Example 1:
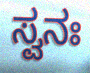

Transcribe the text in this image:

ಸ್ವನಃ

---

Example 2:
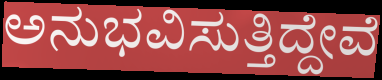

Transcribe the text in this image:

ಅನುಭವಿಸುತ್ತಿದ್ದೇವೆ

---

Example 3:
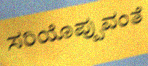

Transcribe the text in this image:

ಸರಿಯೊಪ್ಪುವಂತೆ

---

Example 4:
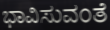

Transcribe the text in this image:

ಭಾವಿಸುವಂತೆ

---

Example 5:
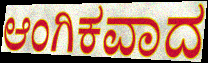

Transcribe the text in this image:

ಆಂಗಿಕವಾದ